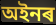
অইনৰ